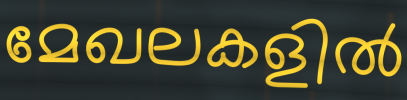
മേഖലകളിൽ